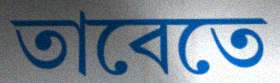
তাবেতে